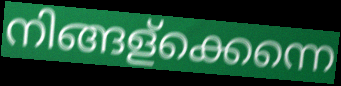
നിങ്ങള്ക്കെന്നെ